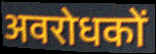
अवरोधकों